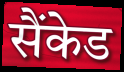
सैंकेड